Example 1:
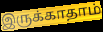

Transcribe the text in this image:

இருக்காதாம்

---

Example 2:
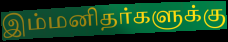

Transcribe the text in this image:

இம்மனிதர்களுக்கு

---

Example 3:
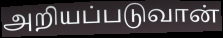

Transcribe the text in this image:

அறியப்படுவான்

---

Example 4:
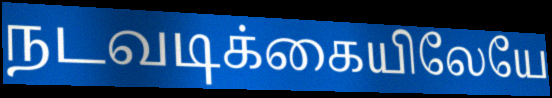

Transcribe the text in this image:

நடவடிக்கையிலேயே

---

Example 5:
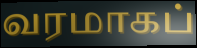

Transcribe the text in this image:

வரமாகப்